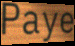
Paye